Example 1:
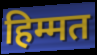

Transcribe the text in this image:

हिम्मत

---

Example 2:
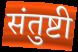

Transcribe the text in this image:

संतुष्टी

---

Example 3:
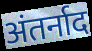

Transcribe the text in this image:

अंतर्नाद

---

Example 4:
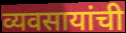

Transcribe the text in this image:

व्यवसायांची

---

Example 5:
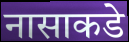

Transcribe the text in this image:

नासाकडे